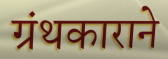
ग्रंथकाराने